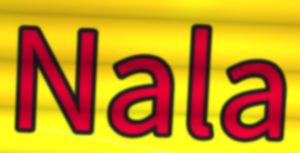
Nala